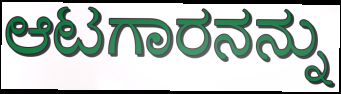
ಆಟಗಾರನನ್ನು